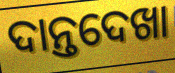
ଦାନ୍ତଦେଖା